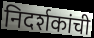
निदर्शकांची